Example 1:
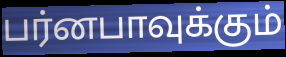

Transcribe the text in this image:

பர்னபாவுக்கும்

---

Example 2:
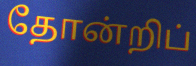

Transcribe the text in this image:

தோன்றிப்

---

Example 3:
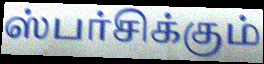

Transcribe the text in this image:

ஸ்பர்சிக்கும்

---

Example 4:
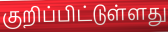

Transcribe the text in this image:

குறிப்பிட்டுள்ளது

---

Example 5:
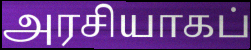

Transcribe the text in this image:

அரசியாகப்